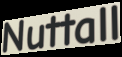
Nuttall